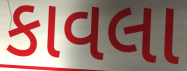
કાવલા